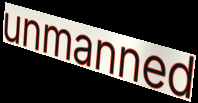
unmanned